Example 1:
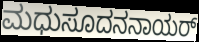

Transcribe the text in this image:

ಮಧುಸೂದನನಾಯರ್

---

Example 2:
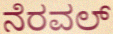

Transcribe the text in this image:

ನೆರವಲ್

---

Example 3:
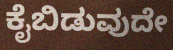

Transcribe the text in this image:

ಕೈಬಿಡುವುದೇ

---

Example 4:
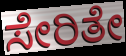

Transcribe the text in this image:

ಸೇರಿತೇ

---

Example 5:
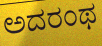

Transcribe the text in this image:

ಅದರಂಥ